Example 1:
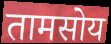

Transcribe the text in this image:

तामसोय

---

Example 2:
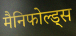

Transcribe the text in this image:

मैनिफोल्ड्स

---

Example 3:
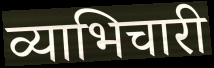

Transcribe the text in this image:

व्याभिचारी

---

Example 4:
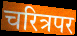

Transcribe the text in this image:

चरित्रपर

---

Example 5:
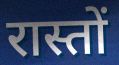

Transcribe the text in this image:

रास्तों